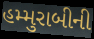
હમ્મુરાબીની